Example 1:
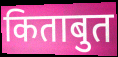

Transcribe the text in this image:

किताबुत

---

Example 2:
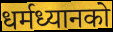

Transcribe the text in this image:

धर्मध्यानको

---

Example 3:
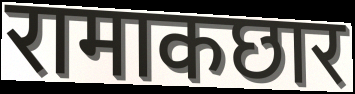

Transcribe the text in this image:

रामाकछार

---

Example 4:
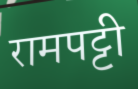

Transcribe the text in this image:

रामपट्टी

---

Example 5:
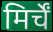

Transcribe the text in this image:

मिर्चें